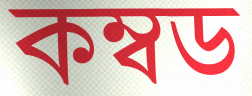
কম্বড